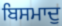
ਬਿਸਮਾਦੁ